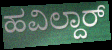
ಹವಿಲ್ದಾರ್